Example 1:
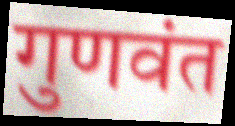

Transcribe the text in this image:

गुणवंत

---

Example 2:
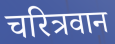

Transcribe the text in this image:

चरित्रवान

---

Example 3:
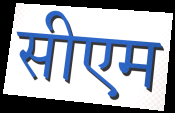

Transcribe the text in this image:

सीएम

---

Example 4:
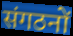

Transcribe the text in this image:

संगठनों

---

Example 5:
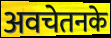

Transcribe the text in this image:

अवचेतनके